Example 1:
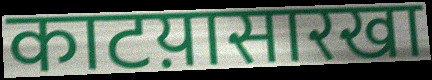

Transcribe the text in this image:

काटय़ासारखा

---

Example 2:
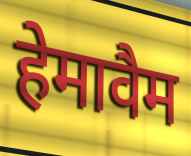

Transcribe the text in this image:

हेमावैम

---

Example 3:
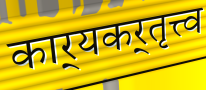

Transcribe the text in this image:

कार्यकर्तृत्त्व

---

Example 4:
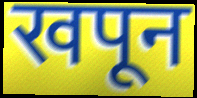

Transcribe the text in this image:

खपून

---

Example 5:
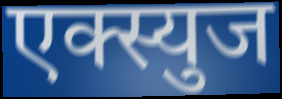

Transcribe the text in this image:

एक्स्युज